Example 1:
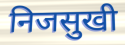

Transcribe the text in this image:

निजसुखी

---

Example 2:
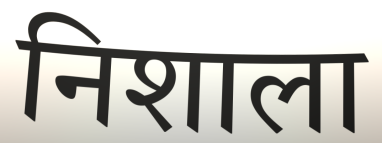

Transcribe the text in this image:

निशाला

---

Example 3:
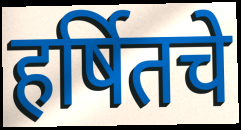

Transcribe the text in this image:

हर्षितचे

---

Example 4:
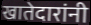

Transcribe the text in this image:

खातेदारांनी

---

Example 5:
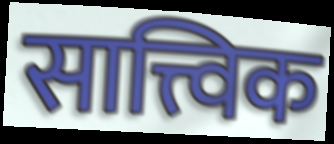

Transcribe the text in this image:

सात्त्विक